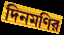
দিনমণির